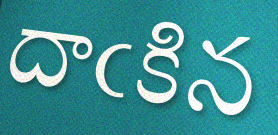
దాఁకిన